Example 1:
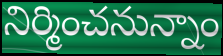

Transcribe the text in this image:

నిర్మించనున్నాం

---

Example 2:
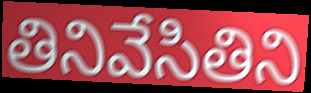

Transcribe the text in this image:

తినివేసితిని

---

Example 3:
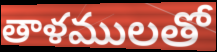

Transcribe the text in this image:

తాళములతో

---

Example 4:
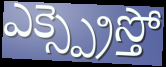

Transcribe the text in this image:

ఎక్స్ప్రెస్తో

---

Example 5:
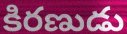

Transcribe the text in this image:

కిరణుడు